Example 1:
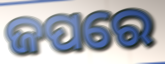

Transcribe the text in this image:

ଜପରେ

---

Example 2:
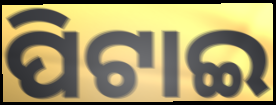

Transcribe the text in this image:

ପିଟାଇ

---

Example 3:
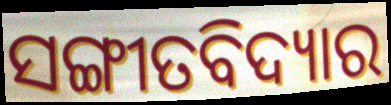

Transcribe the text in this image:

ସଙ୍ଗୀତବିଦ୍ୟାର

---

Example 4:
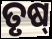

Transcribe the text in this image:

ତୃଷ୍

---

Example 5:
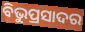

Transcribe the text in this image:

ବିଭୁପ୍ରସାଦର